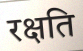
रक्षति